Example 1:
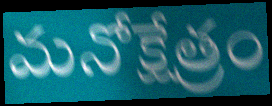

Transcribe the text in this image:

మనోక్షేత్రం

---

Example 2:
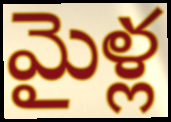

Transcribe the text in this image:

మైళ్ల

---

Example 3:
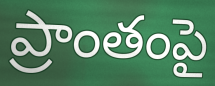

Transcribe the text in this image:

ప్రాంతంపై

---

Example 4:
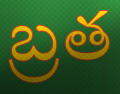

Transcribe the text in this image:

బ్రత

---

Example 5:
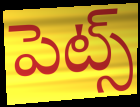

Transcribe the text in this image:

పెట్స్